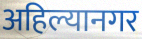
अहिल्यानगर